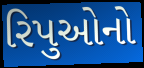
રિપુઓનો